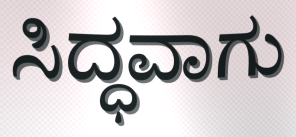
ಸಿದ್ಧವಾಗು